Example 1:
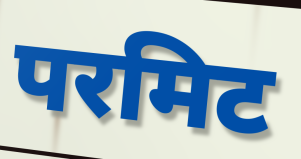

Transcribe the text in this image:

परमिट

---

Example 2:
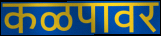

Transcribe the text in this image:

कळपावर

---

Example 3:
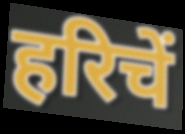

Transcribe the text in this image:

हरिचें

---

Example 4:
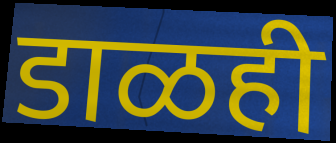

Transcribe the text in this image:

डाळही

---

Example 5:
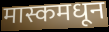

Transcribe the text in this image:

मास्कमधून